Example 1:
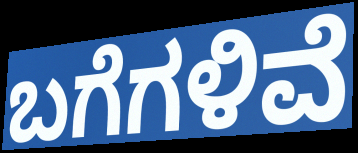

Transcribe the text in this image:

ಬಗೆಗಳಿವೆ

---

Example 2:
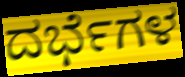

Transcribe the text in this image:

ದರ್ಭೆಗಳ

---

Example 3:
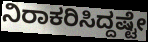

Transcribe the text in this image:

ನಿರಾಕರಿಸಿದ್ದಷ್ಟೇ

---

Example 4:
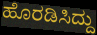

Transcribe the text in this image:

ಹೊರಡಿಸಿದ್ದು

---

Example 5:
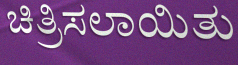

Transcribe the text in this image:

ಚಿತ್ರಿಸಲಾಯಿತು